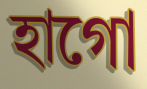
হাগো